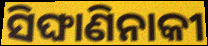
ସିଙ୍ଘାଣିନାକୀ